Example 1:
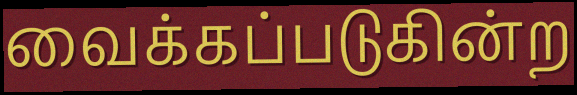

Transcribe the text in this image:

வைக்கப்படுகின்ற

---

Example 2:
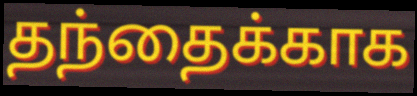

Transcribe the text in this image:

தந்தைக்காக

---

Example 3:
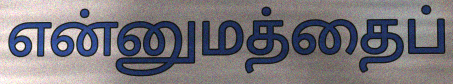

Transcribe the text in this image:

என்னுமத்தைப்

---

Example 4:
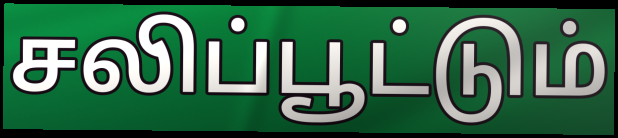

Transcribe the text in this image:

சலிப்பூட்டும்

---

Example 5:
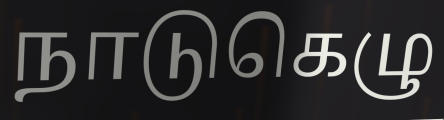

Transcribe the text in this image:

நாடுகெழு